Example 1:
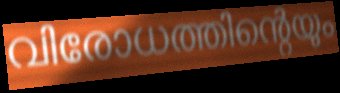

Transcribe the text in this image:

വിരോധത്തിന്റെയും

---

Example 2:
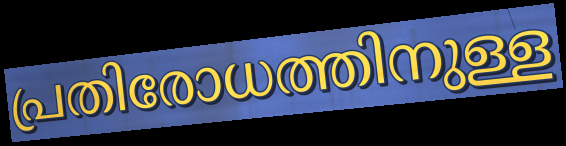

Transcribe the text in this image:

പ്രതിരോധത്തിനുള്ള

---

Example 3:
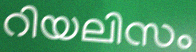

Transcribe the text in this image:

റിയലിസം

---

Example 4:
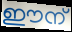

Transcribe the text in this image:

ഈന്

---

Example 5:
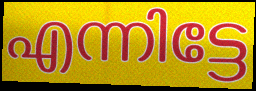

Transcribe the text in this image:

എന്നിട്ടേ